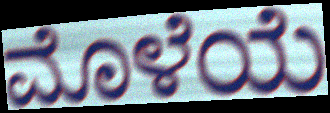
ಮೊಳೆಯೆ